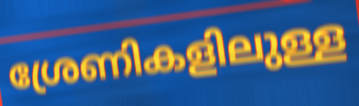
ശ്രേണികളിലുള്ള